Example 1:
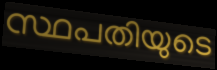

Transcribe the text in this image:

സ്ഥപതിയുടെ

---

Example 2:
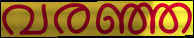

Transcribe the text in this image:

വരഞ്ഞ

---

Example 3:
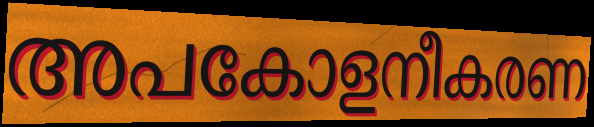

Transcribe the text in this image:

അപകോളനീകരണ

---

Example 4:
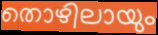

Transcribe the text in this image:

തൊഴിലായും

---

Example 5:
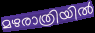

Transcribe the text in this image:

മഴരാത്രിയിൽ